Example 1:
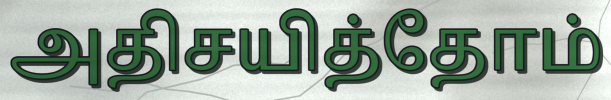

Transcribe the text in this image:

அதிசயித்தோம்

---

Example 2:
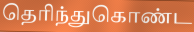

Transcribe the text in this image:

தெரிந்துகொண்ட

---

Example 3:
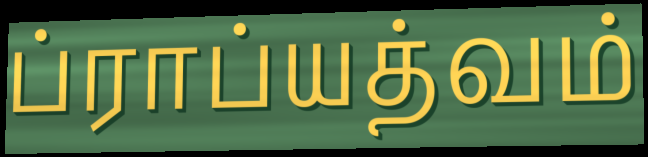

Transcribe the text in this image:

ப்ராப்யத்வம்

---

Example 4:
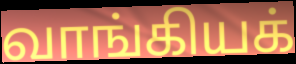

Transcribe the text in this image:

வாங்கியக்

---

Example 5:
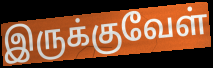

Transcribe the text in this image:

இருக்குவேள்